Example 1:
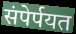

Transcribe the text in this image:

संपेर्पयत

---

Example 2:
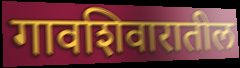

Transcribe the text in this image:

गावशिवारातील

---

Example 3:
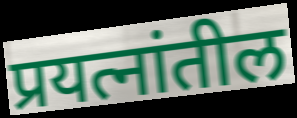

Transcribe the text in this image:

प्रयत्नांतील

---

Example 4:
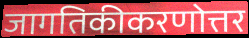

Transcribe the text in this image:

जागतिकीकरणोत्तर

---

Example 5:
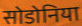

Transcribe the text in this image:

सोडोनिया